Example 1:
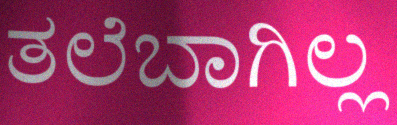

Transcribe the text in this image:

ತಲೆಬಾಗಿಲ್ಲ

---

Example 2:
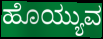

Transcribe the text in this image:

ಹೊಯ್ಯುವ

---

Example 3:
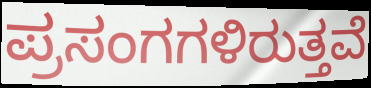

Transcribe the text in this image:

ಪ್ರಸಂಗಗಳಿರುತ್ತವೆ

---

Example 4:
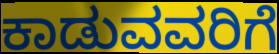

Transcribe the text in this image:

ಕಾಡುವವರಿಗೆ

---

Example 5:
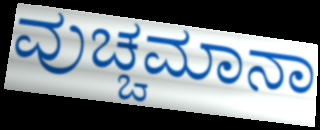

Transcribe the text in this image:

ವುಚ್ಚಮಾನಾ